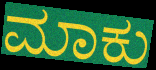
ಮಾಕು